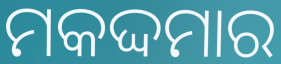
ମକଦ୍ଦମାର